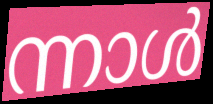
ന്നാൾ